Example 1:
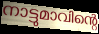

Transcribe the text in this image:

നാട്ടുമാവിന്റെ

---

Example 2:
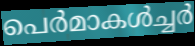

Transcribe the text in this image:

പെർമാകൾച്ചർ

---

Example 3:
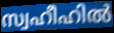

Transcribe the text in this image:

സ്വഹീഹിൽ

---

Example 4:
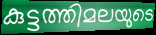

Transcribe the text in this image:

കുട്ടത്തിമലയുടെ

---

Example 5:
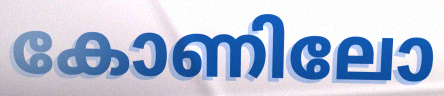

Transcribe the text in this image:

കോണിലോ